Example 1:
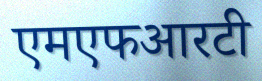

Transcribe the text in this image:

एमएफआरटी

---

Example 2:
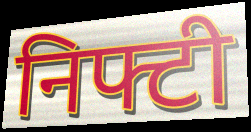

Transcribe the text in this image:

निफ्टी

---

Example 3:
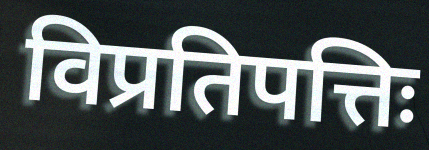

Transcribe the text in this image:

विप्रतिपत्तिः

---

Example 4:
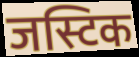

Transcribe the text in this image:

जस्टिक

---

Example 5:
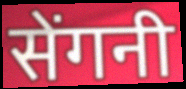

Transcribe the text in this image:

सेंगनी